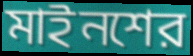
মাইনশের